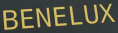
BENELUX